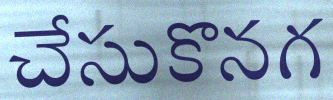
చేసుకొనగ